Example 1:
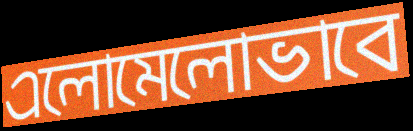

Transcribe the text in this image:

এলোমেলোভাবে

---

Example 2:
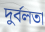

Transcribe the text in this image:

দুর্বলতা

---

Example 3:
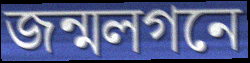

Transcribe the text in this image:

জন্মলগনে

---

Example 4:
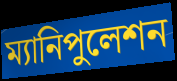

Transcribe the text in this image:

ম্যানিপুলেশন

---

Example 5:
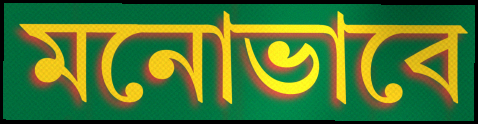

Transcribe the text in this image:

মনোভাবে